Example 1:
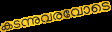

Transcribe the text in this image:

കടന്നുവരവോടെ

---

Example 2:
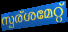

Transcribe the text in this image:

സ്പര്ശമേറ്റ്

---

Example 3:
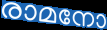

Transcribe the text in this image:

രാമനോ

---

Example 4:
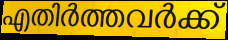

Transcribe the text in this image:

എതിർത്തവർക്ക്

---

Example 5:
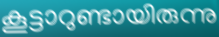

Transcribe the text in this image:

കൂട്ടാറുണ്ടായിരുന്നു